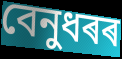
বেনুধৰৰ